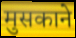
मुसकाने